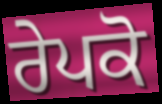
ਰੇਪਕੋ